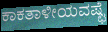
ಕಾಕತಾಳೀಯವಷ್ಟೆ